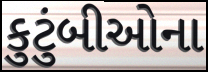
કુટુંબીઓના